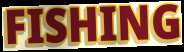
FISHING